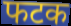
फटक